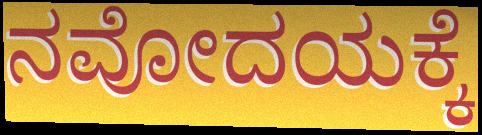
ನವೋದಯಕ್ಕೆ